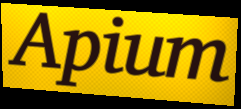
Apium